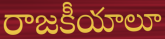
రాజకీయాలూ